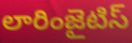
లారింజైటిస్